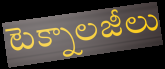
టెక్నాలజీలు